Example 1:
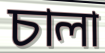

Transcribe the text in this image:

চালা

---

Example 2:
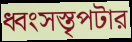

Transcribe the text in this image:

ধ্বংসস্তৃপটার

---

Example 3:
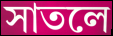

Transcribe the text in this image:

সাতলে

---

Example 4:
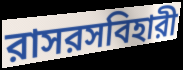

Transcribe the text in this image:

রাসরসবিহারী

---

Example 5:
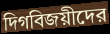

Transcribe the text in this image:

দিগবিজয়ীদের